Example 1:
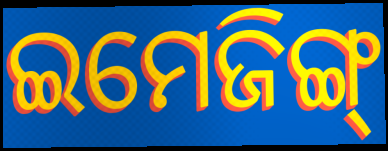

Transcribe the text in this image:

ଇମେଜିଙ୍ଗ୍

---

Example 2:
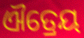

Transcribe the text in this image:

ଐତ୍ରେୟ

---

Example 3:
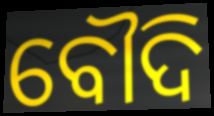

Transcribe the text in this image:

ବୌଦି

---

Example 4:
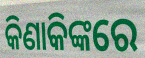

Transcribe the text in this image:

କିଣାକିଙ୍କରେ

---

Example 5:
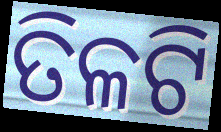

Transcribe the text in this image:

ତିଳଟି